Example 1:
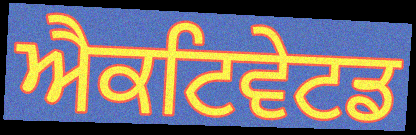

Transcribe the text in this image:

ਐਕਟਿਵੇਟਡ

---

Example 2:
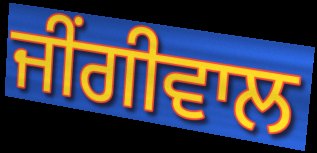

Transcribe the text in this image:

ਜੀਂਗੀਵਾਲ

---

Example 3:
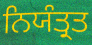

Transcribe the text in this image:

ਨਿਯੰਤ੍ਰਤ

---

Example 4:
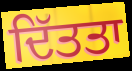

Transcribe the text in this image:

ਦਿੱਤਤਾ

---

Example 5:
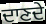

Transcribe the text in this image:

ਦਾਣਦੇ